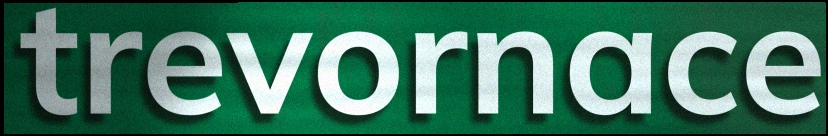
trevornace